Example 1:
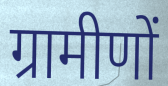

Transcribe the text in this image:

ग्रामीणों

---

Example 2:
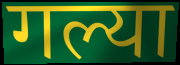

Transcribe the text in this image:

गल्या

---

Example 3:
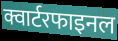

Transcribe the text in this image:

क्वार्टरफाइनल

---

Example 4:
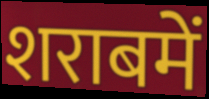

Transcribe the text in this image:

शराबमें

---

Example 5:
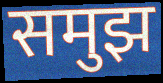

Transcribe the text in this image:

समुझ